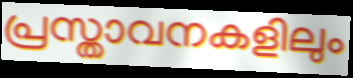
പ്രസ്താവനകളിലും